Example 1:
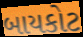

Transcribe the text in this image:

બાયકોટ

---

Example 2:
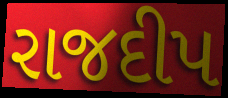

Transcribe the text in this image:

રાજદીપ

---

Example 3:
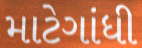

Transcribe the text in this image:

માટેગાંધી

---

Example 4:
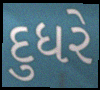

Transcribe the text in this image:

દુધરે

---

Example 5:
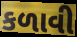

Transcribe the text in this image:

કળાવી